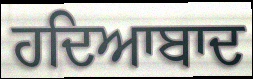
ਹਦਿਆਬਾਦ